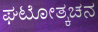
ಘಟೋತ್ಕಚನ